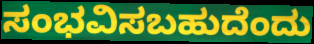
ಸಂಭವಿಸಬಹುದೆಂದು